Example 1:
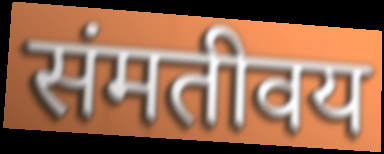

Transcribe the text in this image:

संमतीवय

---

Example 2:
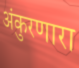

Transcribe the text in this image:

अंकुरणारा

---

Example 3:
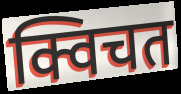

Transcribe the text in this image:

क्विचत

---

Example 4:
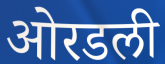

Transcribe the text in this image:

ओरडली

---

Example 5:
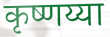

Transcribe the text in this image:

कृष्णय्या